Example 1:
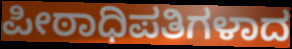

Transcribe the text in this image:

ಪೀಠಾಧಿಪತಿಗಳಾದ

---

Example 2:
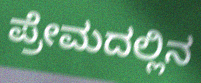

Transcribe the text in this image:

ಪ್ರೇಮದಲ್ಲಿನ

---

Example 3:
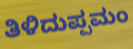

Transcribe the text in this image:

ತಿಳಿದುಪ್ಪಮಂ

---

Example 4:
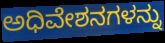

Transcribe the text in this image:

ಅಧಿವೇಶನಗಳನ್ನು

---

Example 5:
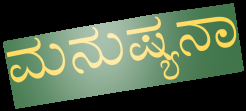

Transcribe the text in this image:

ಮನುಷ್ಯನಾ